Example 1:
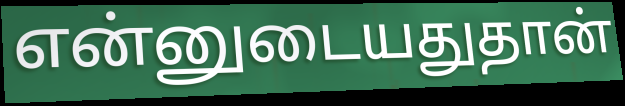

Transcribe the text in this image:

என்னுடையதுதான்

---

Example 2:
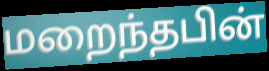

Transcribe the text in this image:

மறைந்தபின்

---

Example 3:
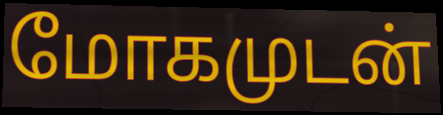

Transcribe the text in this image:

மோகமுடன்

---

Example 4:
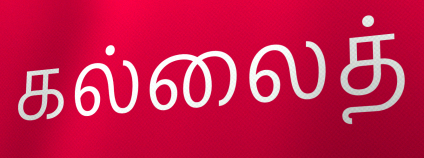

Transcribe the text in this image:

கல்லைத்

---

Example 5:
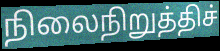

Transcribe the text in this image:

நிலைநிறுத்திச்